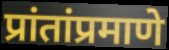
प्रांतांप्रमाणे